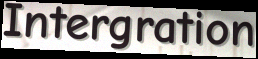
Intergration